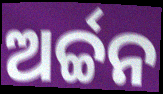
ଅର୍ଚ୍ଚନ